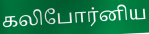
கலிபோர்னிய